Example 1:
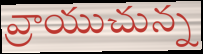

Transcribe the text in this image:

వ్రాయుచున్న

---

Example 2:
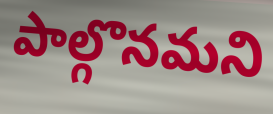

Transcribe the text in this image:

పాల్గొనమని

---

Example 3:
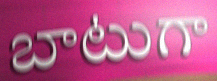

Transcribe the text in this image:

బాటుగా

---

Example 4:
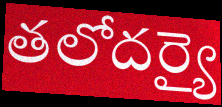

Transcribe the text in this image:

తలోదర్యై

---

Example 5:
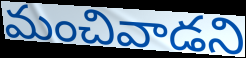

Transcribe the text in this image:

మంచివాడని